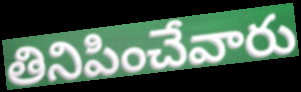
తినిపించేవారు